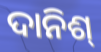
ଦାନିଶ୍